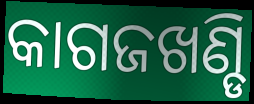
କାଗଜଖଣ୍ଡି